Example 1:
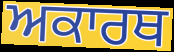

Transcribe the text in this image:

ਅਕਾਰਥ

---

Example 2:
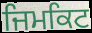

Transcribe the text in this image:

ਜਿਮਕਿਟ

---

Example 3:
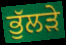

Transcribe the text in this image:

ਭੁੱਲੜੇ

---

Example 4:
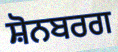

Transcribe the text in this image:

ਸ਼ੋਨਬਰਗ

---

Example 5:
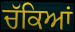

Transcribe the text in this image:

ਚੱਕਿਆਂ